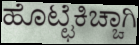
ಹೊಟ್ಟೆಕಿಚ್ಚಾಗಿ